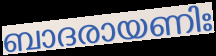
ബാദരായണിഃ